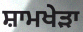
ਸ਼ਾਮਖੇੜਾ